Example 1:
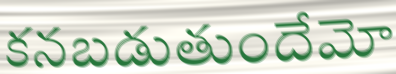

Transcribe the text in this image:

కనబడుతుందేమో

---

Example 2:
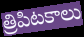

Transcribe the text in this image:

త్రిపిటకాలు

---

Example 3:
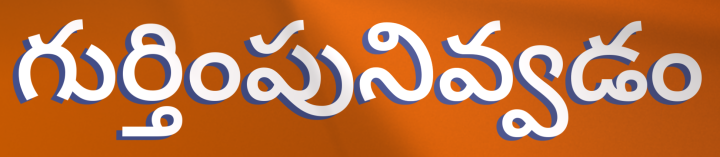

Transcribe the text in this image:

గుర్తింపునివ్వడం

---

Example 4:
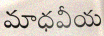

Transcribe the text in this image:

మాధవీయ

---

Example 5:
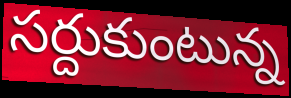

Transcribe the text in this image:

సర్దుకుంటున్న